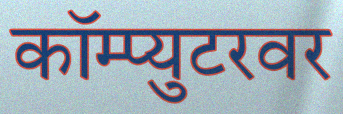
कॉम्प्युटरवर